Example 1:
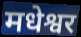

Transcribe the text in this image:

मधेश्वर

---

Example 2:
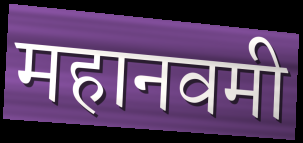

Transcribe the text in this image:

महानवमी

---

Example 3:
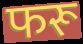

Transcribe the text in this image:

फरू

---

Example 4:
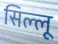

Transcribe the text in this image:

सिल्लू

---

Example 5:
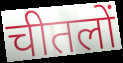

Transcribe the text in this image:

चीतलों